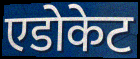
एडोकेट